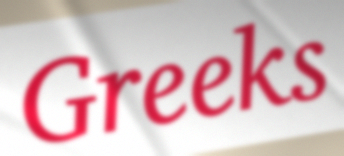
Greeks